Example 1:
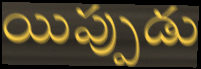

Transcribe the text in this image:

యిప్పుడు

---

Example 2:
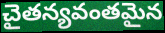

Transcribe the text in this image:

చైతన్యవంతమైన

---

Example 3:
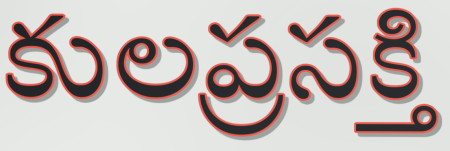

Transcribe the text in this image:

కులప్రసక్తి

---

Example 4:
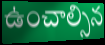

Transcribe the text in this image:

ఉంచాల్సిన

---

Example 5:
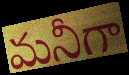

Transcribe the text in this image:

మనీగా